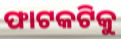
ଫାଟକଟିକୁ